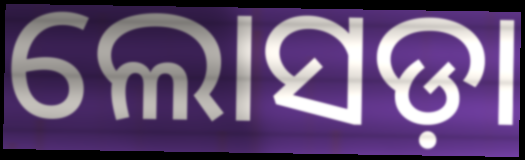
ଲୋସଡ଼ା